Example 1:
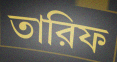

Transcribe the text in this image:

তারিফ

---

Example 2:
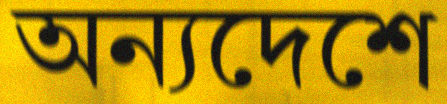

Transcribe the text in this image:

অন্যদেশে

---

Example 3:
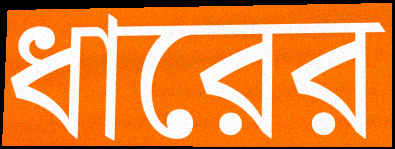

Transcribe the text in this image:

ধারের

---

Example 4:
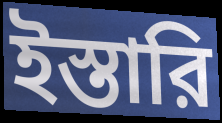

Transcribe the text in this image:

ইস্তারি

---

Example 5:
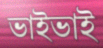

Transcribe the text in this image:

ভাইভাই